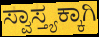
ಸ್ವಾಸ್ತ್ಯಕ್ಕಾಗಿ